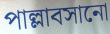
পাল্লাবসানো